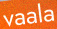
vaala